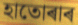
হাতোৰাৰ